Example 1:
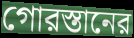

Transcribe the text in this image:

গোরস্তানের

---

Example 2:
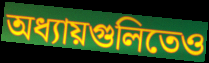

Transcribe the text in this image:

অধ্যায়গুলিতেও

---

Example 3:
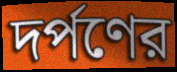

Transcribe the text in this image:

দর্পণের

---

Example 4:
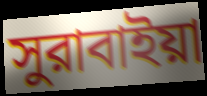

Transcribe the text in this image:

সুরাবাইয়া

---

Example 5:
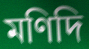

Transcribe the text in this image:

মণিদি